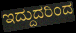
ಇದ್ದುದರಿಂದ